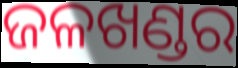
ଜଳଖଣ୍ଡର